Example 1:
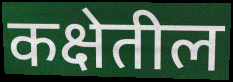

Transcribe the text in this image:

कक्षेतील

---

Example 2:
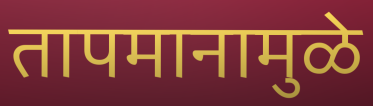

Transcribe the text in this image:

तापमानामुळे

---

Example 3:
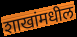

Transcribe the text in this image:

शाखांमधील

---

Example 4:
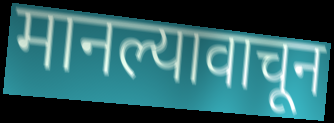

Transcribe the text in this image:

मानल्यावाचून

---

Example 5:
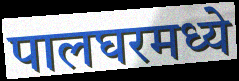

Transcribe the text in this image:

पालघरमध्ये